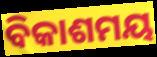
ବିକାଶମୟ